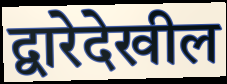
द्वारेदेखील